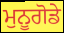
ਮੁਨੂਗੋਡੇ